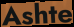
Ashte